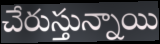
చేరుస్తున్నాయి